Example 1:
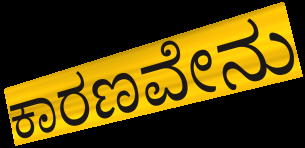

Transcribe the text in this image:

ಕಾರಣವೇನು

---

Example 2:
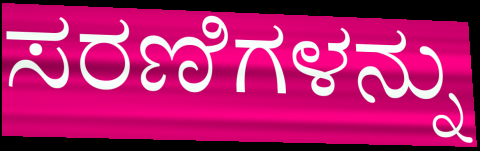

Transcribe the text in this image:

ಸರಣಿಗಳನ್ನು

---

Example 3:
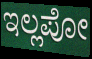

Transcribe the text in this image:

ಇಲ್ಲಪೋ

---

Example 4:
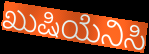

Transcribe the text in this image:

ಖುಷಿಯೆನಿಸಿ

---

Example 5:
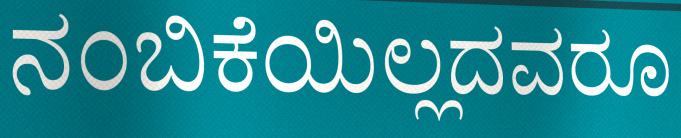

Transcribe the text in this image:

ನಂಬಿಕೆಯಿಲ್ಲದವರೂ